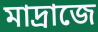
মাদ্রাজে